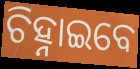
ଚିହ୍ନାଇବେ